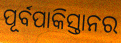
ପୂର୍ବପାକିସ୍ତାନର